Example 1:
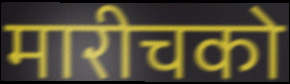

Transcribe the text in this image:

मारीचको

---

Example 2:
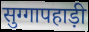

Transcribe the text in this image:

सुग्गापहाड़ी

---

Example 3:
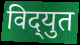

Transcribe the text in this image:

विद्‌युत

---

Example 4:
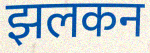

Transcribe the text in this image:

झलकन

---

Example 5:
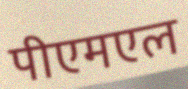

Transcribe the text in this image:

पीएमएल